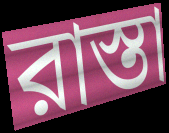
রাস্তা